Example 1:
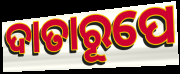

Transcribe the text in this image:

ଦାତାରୂପେ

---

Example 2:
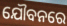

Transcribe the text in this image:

ଯୌବନରେ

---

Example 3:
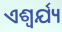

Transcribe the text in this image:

ଏଶ୍ଵର୍ଯ୍ୟ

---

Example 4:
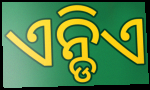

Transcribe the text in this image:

ଏନ୍ଡିଏ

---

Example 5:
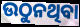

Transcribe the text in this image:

ଉଠୁନଥିବା